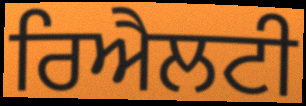
ਰਿਐਲਟੀ